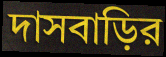
দাসবাড়ির